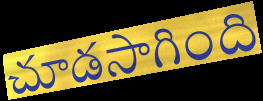
చూడసాగింది